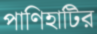
পাণিহাটির